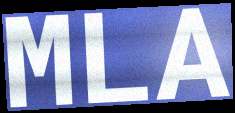
MLA